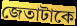
জেতাটাকে